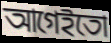
আগেইতো